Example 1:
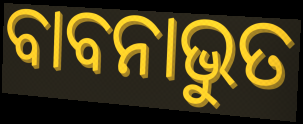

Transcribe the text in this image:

ବାବନାଭୁତ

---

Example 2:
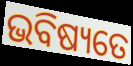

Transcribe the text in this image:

ଭବିଷ୍ୟତେ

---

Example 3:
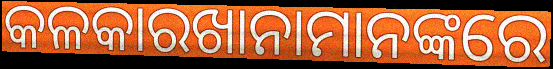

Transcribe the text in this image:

କଳକାରଖାନାମାନଙ୍କରେ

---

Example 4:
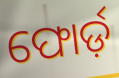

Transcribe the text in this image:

ଫୋର୍ଡ଼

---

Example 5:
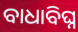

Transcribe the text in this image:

ବାଧାବିଘ୍ନ